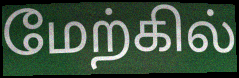
மேற்கில்